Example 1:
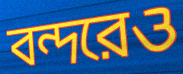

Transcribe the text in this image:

বন্দরেও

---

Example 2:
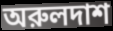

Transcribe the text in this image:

অরুলদাশ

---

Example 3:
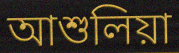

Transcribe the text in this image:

আশুলিয়া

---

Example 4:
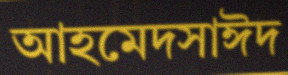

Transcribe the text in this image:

আহমেদসাঈদ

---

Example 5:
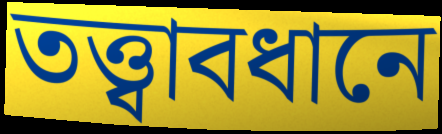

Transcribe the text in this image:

তত্ত্বাবধানে